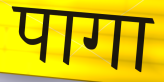
पागा